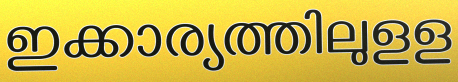
ഇക്കാര്യത്തിലുളള